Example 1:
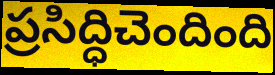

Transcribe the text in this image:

ప్రసిద్ధిచెందింది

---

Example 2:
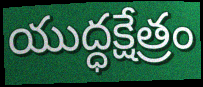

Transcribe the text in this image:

యుద్ధక్షేత్రం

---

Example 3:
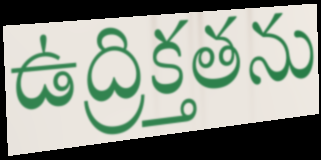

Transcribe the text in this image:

ఉద్రిక్తతను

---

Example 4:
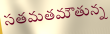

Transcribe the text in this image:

సతమతమౌతున్న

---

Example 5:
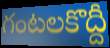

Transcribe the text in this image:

గంటలకొద్దీ